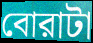
বোরাটা